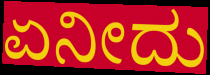
ಏನೀದು